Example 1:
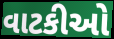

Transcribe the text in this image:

વાટકીઓ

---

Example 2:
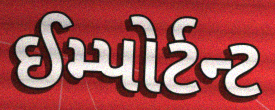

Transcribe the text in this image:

ઈમ્પોર્ટન્ટ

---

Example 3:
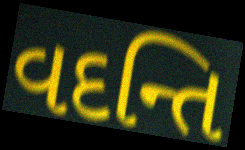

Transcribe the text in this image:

વદન્તિ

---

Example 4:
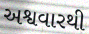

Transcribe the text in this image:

અશ્વવારથી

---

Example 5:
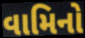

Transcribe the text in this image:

વામિનો